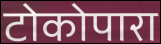
टोकोपारा